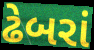
ઢેબરાં